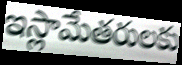
ఇస్లామేతరులకు